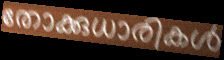
തോക്കുധാരികൾ